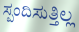
ಸ್ಪಂದಿಸುತ್ತಿಲ್ಲ